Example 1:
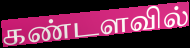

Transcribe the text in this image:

கண்டளவில்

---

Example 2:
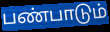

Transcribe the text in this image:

பண்பாடும்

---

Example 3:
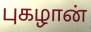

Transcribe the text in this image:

புகழான்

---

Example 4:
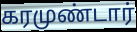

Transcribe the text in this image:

கரமுண்டார்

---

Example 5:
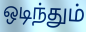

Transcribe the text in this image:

ஒடிந்தும்